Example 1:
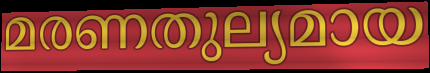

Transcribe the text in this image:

മരണതുല്യമായ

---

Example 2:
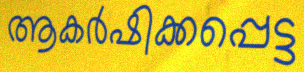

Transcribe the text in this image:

ആകർഷിക്കപ്പെട്ട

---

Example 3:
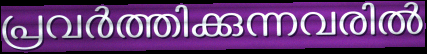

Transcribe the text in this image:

പ്രവർത്തിക്കുന്നവരിൽ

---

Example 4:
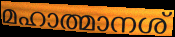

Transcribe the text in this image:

മഹാത്മാനശ്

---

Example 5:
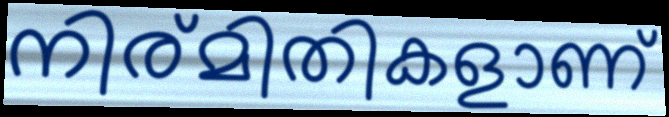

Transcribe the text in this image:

നിര്മിതികളാണ്